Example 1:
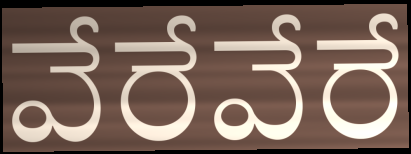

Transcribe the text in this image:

వేరేవేరే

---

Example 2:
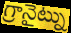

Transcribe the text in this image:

గ్రానైట్ను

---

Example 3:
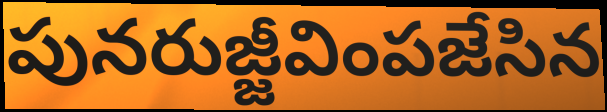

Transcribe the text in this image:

పునరుజ్జీవింపజేసిన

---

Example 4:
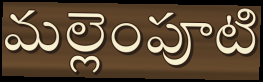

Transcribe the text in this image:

మల్లెంపూటి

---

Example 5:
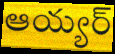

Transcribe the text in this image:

ఆయ్యర్